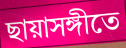
ছায়াসঙ্গীতে